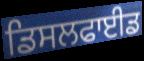
ਡਿਸਲਫਾਈਡ